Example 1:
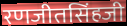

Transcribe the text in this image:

रणजीतसिंहजी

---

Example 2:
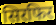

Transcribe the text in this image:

सिरफिर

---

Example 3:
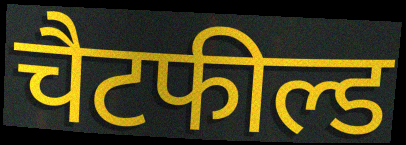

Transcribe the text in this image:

चैटफील्ड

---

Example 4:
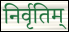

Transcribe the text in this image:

निर्वृतिम्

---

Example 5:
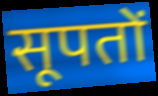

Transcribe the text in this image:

सूपतों